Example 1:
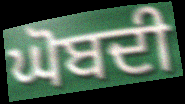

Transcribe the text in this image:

ਘੋਬਦੀ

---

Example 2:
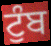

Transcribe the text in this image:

ਟੁੰਬ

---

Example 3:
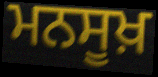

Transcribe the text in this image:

ਮਨਸੂਖ਼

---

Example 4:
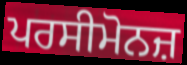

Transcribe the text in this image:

ਪਰਸੀਮੋਨਜ਼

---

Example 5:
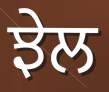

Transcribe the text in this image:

ਝੇਲ